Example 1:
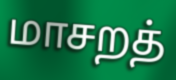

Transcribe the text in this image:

மாசறத்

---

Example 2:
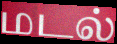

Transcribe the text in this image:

மடல்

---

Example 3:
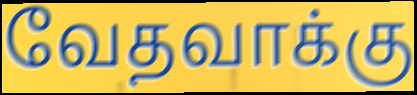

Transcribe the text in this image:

வேதவாக்கு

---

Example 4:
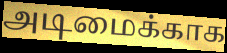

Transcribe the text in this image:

அடிமைக்காக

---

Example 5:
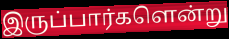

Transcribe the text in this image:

இருப்பார்களென்று